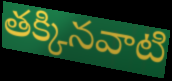
తక్కినవాటి